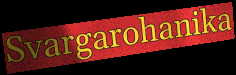
Svargarohanika